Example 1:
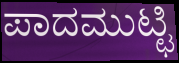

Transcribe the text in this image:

ಪಾದಮುಟ್ಟಿ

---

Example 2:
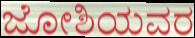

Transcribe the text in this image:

ಜೋಶಿಯವರ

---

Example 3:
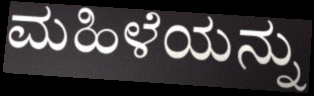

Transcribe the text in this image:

ಮಹಿಳೆಯನ್ನು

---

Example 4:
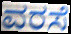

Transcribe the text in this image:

ವರಸೆ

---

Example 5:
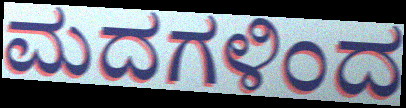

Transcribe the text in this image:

ಮದಗಳಿಂದ